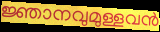
ജ്ഞാനവുമുള്ളവൻ